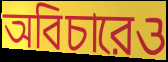
অবিচারেও